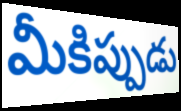
మీకిప్పుడు